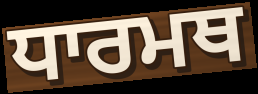
ਧਾਰਮਥ